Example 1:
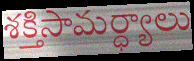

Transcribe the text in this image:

శక్తిసామర్ధ్యాలు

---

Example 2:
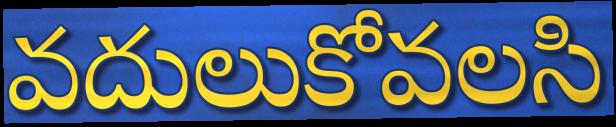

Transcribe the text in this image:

వదులుకోవలసి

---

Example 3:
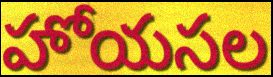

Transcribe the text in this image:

హోయసల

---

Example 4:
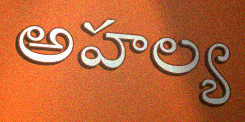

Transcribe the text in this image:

అహల్య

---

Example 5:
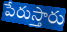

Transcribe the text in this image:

పేరుస్తారు